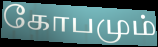
கோபமும்